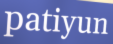
patiyun